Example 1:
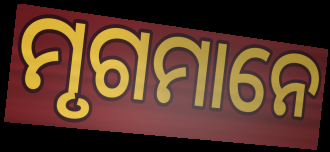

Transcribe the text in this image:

ମୃଗମାନେ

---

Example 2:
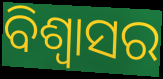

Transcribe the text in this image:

ବିଶ୍ୱାସର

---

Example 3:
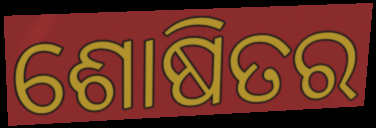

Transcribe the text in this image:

ଶୋଷିତର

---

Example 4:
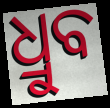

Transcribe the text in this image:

ଧ୍ରୁବ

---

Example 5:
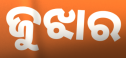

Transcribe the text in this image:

ଜୁଝାର